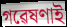
গৱেষণাই